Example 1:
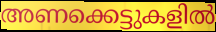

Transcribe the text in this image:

അണക്കെട്ടുകളിൽ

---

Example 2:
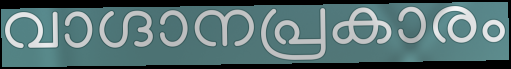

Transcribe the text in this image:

വാഗ്ദാനപ്രകാരം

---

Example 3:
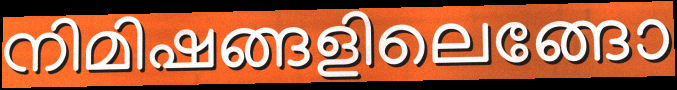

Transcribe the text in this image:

നിമിഷങ്ങളിലെങ്ങോ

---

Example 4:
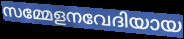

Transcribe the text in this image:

സമ്മേളനവേദിയായ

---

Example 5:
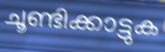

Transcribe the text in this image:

ചൂണ്ടിക്കാട്ടുക